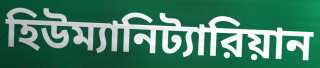
হিউম্যানিট্যারিয়ান